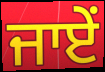
ਜਾਏਂ